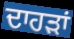
ਦਾਹੜਾਂ